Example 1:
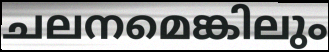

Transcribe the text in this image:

ചലനമെങ്കിലും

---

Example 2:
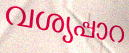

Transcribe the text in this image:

വശ്യപ്പാറ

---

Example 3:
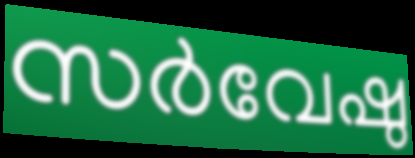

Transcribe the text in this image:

സർവേഷു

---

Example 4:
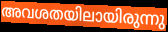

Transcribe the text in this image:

അവശതയിലായിരുന്നു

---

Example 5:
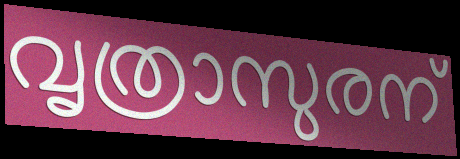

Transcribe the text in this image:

വൃത്രാസുരന്